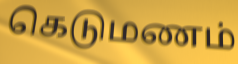
கெடுமணம்